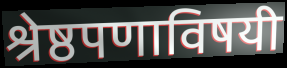
श्रेष्ठपणाविषयी